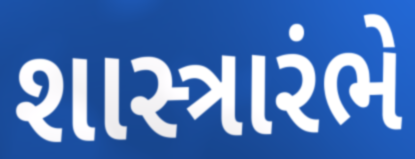
શાસ્ત્રારંભે